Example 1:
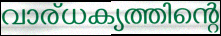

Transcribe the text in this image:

വാര്ധക്യത്തിന്റെ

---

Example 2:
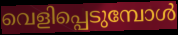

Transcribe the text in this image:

വെളിപ്പെടുമ്പോൾ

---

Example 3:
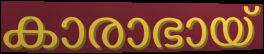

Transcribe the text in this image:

കാരാഭായ്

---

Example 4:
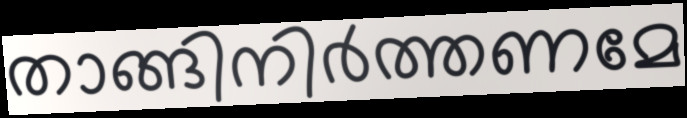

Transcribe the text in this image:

താങ്ങിനിർത്തണമേ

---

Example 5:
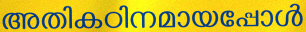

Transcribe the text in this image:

അതികഠിനമായപ്പോൾ